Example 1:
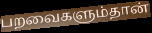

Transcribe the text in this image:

பறவைகளும்தான்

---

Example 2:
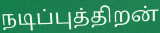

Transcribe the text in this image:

நடிப்புத்திறன்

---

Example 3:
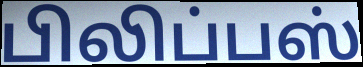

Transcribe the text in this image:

பிலிப்பஸ்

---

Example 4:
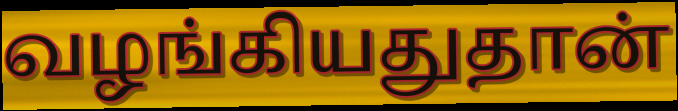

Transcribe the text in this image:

வழங்கியதுதான்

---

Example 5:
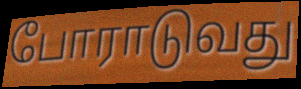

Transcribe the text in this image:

போராடுவது